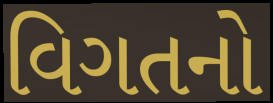
વિગતનો